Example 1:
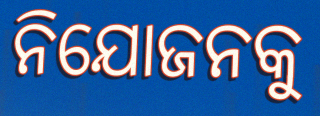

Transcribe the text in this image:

ନିଯୋଜନକୁ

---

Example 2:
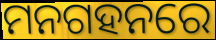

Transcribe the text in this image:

ମନଗହନରେ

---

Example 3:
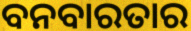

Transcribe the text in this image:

ବନବାରତାର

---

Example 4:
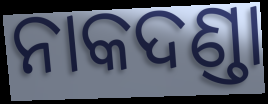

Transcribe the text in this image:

ନାକଦଣ୍ଡା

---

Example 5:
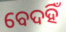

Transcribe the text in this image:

ବେଦହିଁ